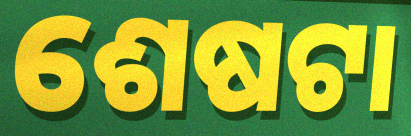
ଶେଷଟା